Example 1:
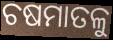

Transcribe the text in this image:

ଚଷମାତଳୁ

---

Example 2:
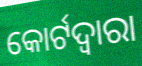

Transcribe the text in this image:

କୋର୍ଟଦ୍ୱାରା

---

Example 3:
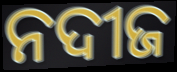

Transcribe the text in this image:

ନଦୀଜ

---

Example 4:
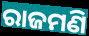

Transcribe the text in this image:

ରାଜମଣି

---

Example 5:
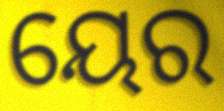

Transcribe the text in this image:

ୟେର